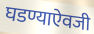
घडण्याऐवजी